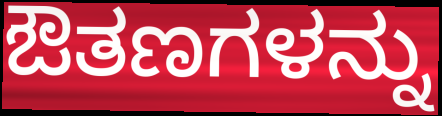
ಔತಣಗಳನ್ನು